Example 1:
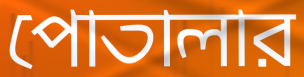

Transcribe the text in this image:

পোতালার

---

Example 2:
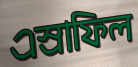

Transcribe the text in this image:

এস্রাফিল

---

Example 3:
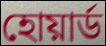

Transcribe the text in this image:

হোয়ার্ড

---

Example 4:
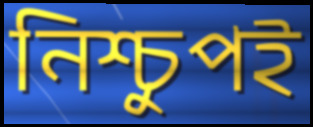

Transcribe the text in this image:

নিশ্চুপই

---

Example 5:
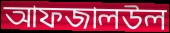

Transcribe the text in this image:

আফজালউল